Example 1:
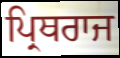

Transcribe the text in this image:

ਪ੍ਰਿਥਰਾਜ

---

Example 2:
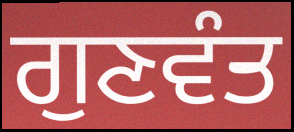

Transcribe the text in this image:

ਗੁਣਵੰਤ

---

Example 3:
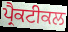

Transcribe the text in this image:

ਪ੍ਰੈਕਟੀਕਲ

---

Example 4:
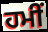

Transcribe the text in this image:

ਹਮੀਂ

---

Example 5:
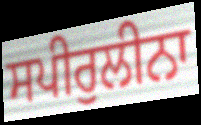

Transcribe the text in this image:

ਸਪੀਰੁਲੀਨਾ